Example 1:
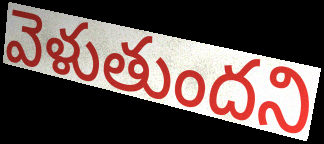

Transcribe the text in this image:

వెళుతుందని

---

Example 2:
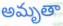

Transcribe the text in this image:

అమృతా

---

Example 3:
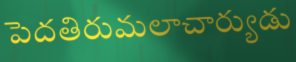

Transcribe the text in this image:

పెదతిరుమలాచార్యుడు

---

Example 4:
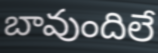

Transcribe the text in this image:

బావుందిలే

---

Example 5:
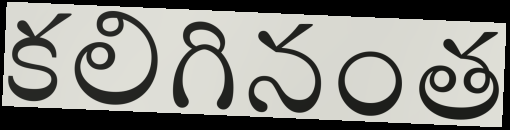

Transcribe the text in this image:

కలిగినంత